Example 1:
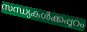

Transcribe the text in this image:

സന്ധ്യകൾക്കപ്പുറം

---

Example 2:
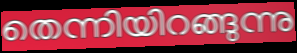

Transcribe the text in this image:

തെന്നിയിറങ്ങുന്നു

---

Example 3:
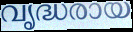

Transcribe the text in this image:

വൃദ്ധരായ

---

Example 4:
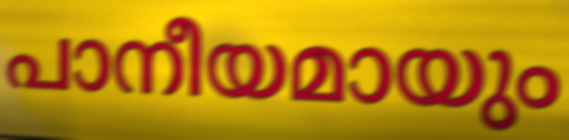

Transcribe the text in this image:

പാനീയമായും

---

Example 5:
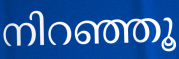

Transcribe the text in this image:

നിറഞ്ഞൂ